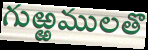
గుఱ్ఱములతొ